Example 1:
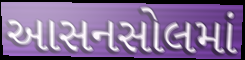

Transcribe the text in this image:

આસનસોલમાં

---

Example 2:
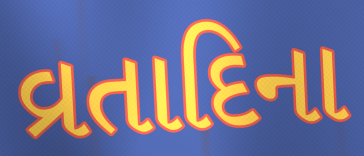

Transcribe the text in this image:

વ્રતાદિના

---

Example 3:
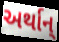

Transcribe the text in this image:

અર્થાન્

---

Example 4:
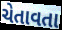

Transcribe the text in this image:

ચેતાવતા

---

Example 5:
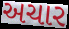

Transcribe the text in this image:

અચાર